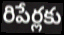
రిపేర్లకు